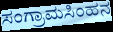
ಸಂಗ್ರಾಮಸಿಂಹನ